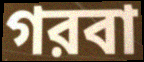
গরবা